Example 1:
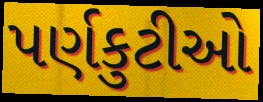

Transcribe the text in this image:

પર્ણકુટીઓ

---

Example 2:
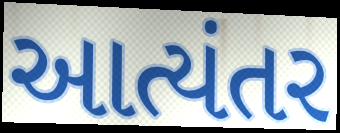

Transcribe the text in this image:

આત્યંતર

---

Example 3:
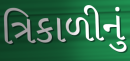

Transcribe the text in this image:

ત્રિકાળીનું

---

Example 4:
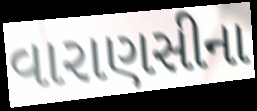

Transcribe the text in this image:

વારાણસીના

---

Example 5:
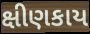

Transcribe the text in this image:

ક્ષીણકાય